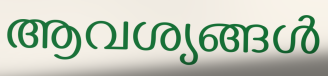
ആവശ്യങ്ങൾ